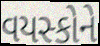
વયસ્કોને